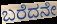
ಬರೆದನೇ